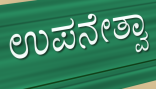
ಉಪನೇತ್ವಾ